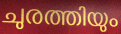
ചുരത്തിയും